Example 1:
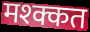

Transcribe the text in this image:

मश्क्कत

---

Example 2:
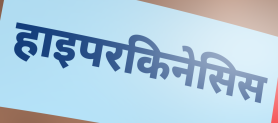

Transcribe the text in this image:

हाइपरकिनेसिस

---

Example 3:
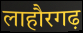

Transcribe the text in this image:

लाहौरगढ़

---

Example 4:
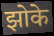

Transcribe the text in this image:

झोके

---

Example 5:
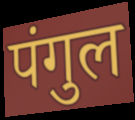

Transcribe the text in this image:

पंगुल